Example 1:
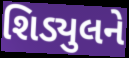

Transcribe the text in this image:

શિડ્યુલને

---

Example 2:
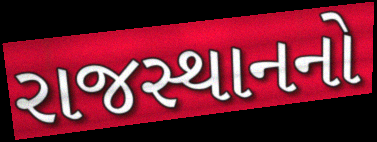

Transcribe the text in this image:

રાજસ્થાનનો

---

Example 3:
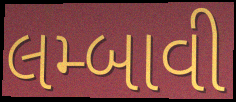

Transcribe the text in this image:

લમ્બાવી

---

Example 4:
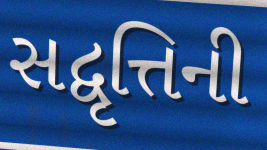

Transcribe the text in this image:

સદ્વૃત્તિની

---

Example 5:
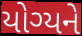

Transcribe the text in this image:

યોગ્યને